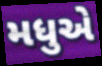
મધુએ